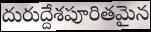
దురుద్దేశపూరితమైన